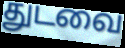
துடவை